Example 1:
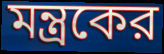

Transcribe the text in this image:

মন্ত্রকের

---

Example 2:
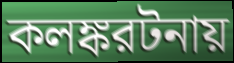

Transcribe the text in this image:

কলঙ্করটনায়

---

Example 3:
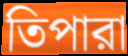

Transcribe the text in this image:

তিপারা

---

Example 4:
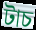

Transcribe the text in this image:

টাচ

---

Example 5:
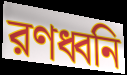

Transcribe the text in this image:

রণধ্বনি